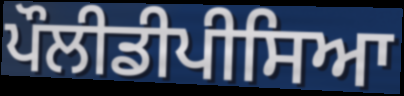
ਪੌਲੀਡੀਪੀਸਿਆ